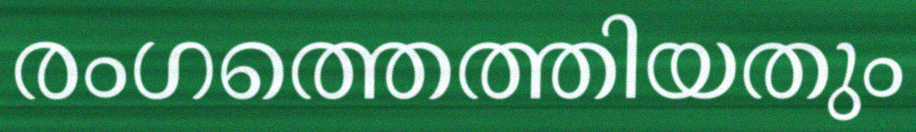
രംഗത്തെത്തിയതും